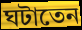
ঘটাতেন